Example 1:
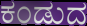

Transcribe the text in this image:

ಕಂಡುದ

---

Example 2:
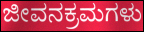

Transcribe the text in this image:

ಜೀವನಕ್ರಮಗಳು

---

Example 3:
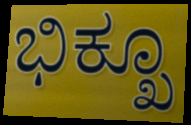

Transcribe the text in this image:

ಭಿಕ್ಖೂ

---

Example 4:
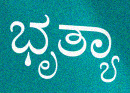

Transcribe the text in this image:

ಭೃತ್ಯಾ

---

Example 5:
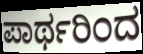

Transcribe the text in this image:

ಪಾರ್ಥರಿಂದ